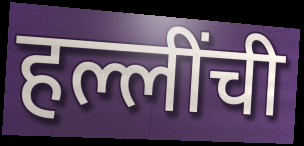
हल्लींची